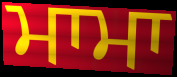
ਮਾਮਾ